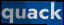
quack